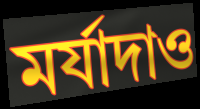
মর্যাদাও